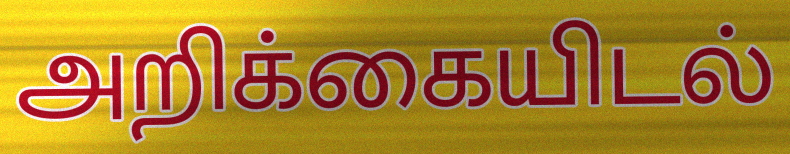
அறிக்கையிடல்